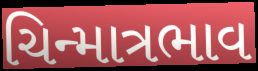
ચિન્માત્રભાવ